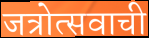
जत्रोत्सवाची